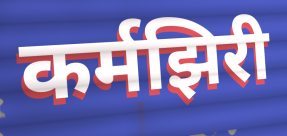
कर्मझिरी